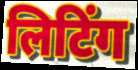
लिटिंग